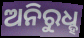
ଅନିରୁଧ୍ହ